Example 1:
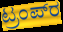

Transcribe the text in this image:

ಟ್ರಂಪ್‍ರ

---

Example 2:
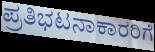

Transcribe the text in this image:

ಪ್ರತಿಭಟನಾಕಾರರಿಗೆ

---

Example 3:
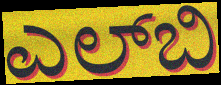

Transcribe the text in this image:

ಎಲ್‌ಬಿ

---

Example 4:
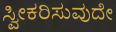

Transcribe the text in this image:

ಸ್ವೀಕರಿಸುವುದೇ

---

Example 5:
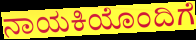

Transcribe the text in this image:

ನಾಯಕಿಯೊಂದಿಗೆ